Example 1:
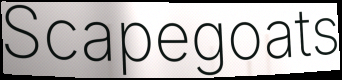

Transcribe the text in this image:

Scapegoats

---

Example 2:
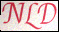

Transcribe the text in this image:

NLD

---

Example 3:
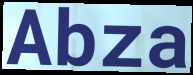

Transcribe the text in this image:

Abza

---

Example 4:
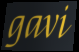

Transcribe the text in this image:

gavi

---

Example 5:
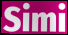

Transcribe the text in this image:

Simi